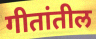
गीतांतील